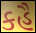
કહૈ